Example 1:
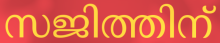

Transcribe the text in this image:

സജിത്തിന്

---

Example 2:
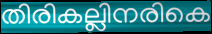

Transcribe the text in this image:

തിരികല്ലിനരികെ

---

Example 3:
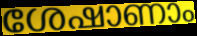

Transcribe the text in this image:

ശേഷാണാം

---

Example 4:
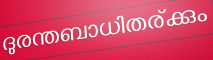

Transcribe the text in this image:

ദുരന്തബാധിതര്ക്കും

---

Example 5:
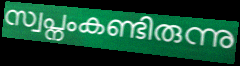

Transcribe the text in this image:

സ്വപ്നംകണ്ടിരുന്നു